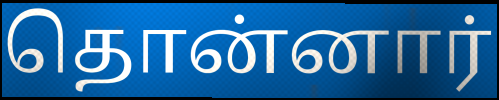
தொன்னார்